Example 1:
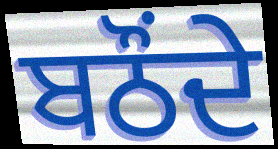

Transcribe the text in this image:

ਬਠੌਂਦੇ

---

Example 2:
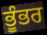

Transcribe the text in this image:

ਭੂੰਭਰ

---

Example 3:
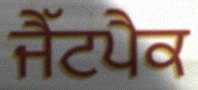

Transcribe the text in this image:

ਜੈੱਟਪੈਕ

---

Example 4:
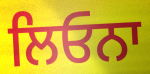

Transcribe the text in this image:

ਲਿਓਨਾ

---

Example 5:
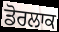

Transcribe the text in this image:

ਡੋਰਲਾਕ